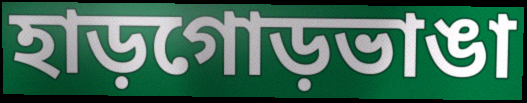
হাড়গোড়ভাঙা